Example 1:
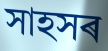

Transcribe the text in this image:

সাহসৰ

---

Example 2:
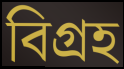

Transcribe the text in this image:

বিগ্ৰহ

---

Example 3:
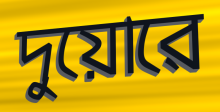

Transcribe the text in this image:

দুয়োৱে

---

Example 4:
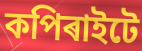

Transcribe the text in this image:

কপিৰাইটে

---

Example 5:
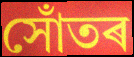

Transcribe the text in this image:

সোঁতৰ